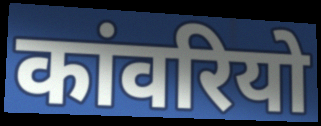
कांवरियो